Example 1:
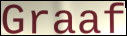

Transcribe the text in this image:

Graaf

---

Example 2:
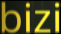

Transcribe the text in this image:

bizi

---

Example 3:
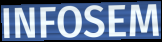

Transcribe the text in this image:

INFOSEM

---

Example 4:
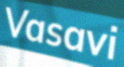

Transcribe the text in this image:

Vasavi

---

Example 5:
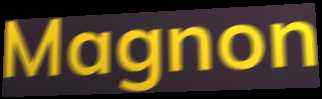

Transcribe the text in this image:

Magnon